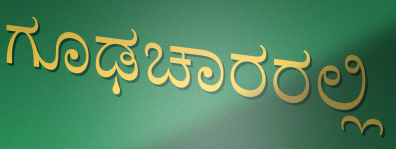
ಗೂಢಚಾರರಲ್ಲಿ